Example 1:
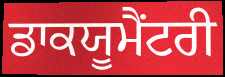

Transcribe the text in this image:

ਡਾਕਯੂਮੈਂਟਰੀ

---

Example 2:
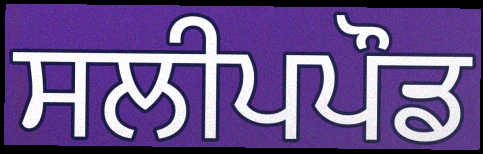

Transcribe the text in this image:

ਸਲੀਪਪੌਡ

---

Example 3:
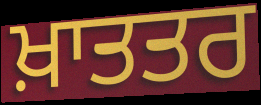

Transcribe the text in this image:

ਖ਼ਾਤਤਰ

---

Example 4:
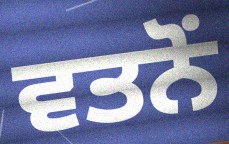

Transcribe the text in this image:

ਵਤਨੋਂ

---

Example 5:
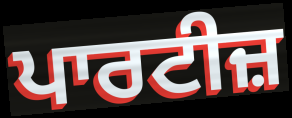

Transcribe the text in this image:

ਪਾਰਟੀਜ਼